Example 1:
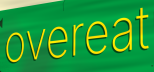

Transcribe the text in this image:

overeat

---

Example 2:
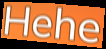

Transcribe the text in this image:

Hehe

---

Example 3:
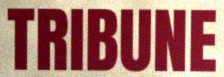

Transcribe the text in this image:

TRIBUNE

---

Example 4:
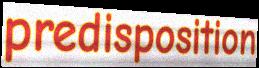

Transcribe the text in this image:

predisposition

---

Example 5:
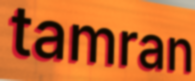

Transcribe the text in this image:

tamran